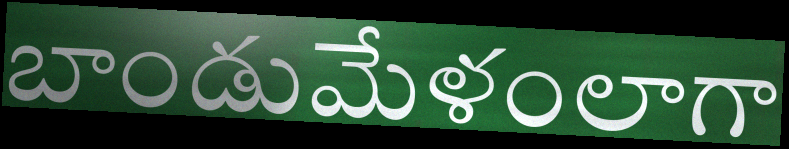
బాండుమేళంలాగా